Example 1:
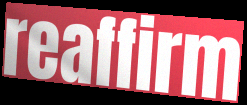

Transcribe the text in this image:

reaffirm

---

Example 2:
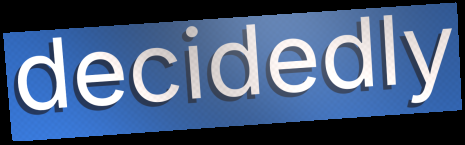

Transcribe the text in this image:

decidedly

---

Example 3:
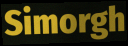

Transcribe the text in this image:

Simorgh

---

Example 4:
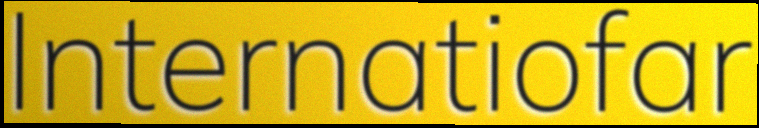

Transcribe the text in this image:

Internatiofar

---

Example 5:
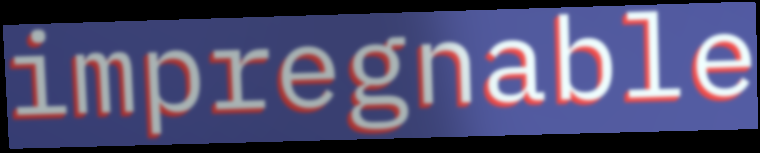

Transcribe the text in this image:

impregnable